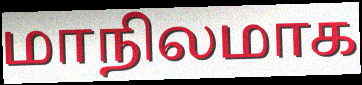
மாநிலமாக